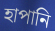
হাপানি